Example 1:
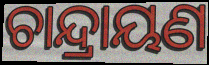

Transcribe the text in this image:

ଚାନ୍ଦ୍ରାୟଣ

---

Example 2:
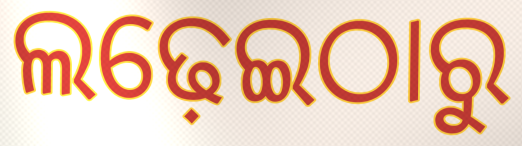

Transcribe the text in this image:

ଲଢ଼େଇଠାରୁ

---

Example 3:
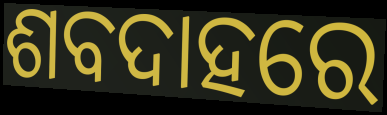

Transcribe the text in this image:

ଶବଦାହରେ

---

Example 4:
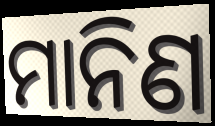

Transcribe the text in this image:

ମାନିଣ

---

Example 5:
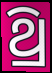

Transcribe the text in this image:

ଥ୍ରି